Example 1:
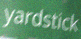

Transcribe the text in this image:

yardstick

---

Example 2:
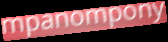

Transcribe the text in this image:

mpanompony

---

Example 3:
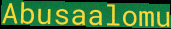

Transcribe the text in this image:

Abusaalomu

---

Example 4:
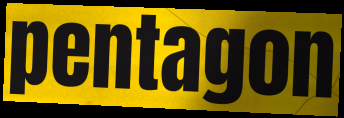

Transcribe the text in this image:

pentagon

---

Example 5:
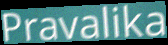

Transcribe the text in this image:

Pravalika